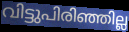
വിട്ടുപിരിഞ്ഞില്ല